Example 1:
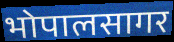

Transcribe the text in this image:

भोपालसागर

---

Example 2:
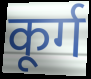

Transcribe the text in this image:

कूर्ग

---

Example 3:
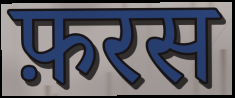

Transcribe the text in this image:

फ़रस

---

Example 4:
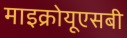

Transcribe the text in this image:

माइक्रोयूएसबी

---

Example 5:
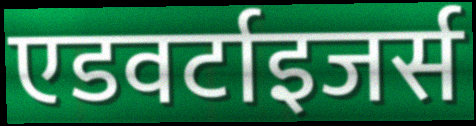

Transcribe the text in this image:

एडवर्टाइजर्स